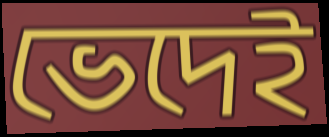
ভেদেই